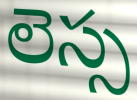
లెస్స